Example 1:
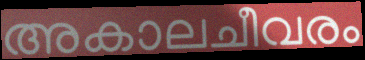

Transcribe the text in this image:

അകാലചീവരം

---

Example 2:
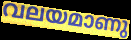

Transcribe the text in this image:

വലയമാണു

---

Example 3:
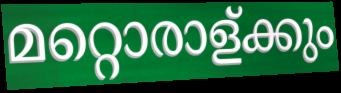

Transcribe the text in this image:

മറ്റൊരാള്ക്കും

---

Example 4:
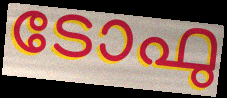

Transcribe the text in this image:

ടോഫു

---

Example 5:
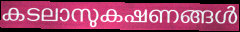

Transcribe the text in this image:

കടലാസുകഷണങ്ങൾ